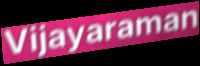
Vijayaraman